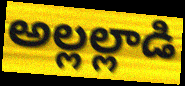
అల్లల్లాడి